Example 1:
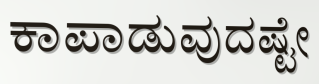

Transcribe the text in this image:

ಕಾಪಾಡುವುದಷ್ಟೇ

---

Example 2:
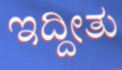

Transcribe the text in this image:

ಇದ್ದೀತು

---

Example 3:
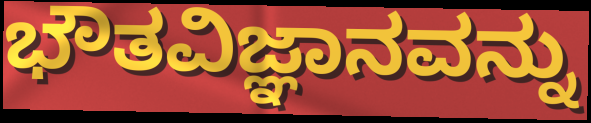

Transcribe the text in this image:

ಭೌತವಿಜ್ಞಾನವನ್ನು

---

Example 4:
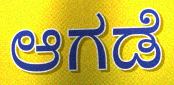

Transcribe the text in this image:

ಆಗಡೆ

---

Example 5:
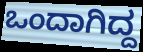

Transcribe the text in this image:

ಒಂದಾಗಿದ್ದ